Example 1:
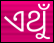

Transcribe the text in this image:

ଏଥୁଁ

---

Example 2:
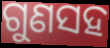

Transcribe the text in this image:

ଗୁଣସହ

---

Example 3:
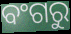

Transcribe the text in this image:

ବଂଗରୁ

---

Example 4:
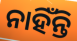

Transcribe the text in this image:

ନାହିଁନ୍ତି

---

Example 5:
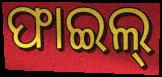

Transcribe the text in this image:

ଫାଇଲ୍